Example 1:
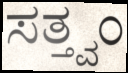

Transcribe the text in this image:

ಸತ್ತ್ವಂ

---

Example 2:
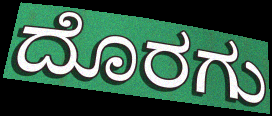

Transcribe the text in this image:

ದೊರಗು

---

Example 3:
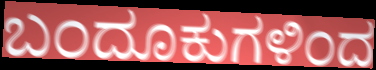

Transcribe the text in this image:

ಬಂದೂಕುಗಳಿಂದ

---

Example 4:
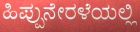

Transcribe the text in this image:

ಹಿಪ್ಪುನೇರಳೆಯಲ್ಲಿ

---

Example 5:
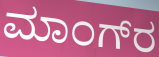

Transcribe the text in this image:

ಮಾಂಗ್‌ರ